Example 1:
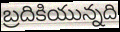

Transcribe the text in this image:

బ్రదికియున్నది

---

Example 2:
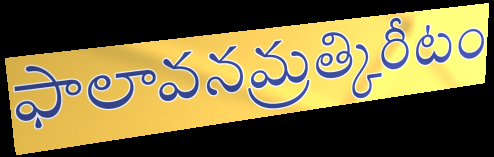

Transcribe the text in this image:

ఫాలావనమ్రత్కిరీటం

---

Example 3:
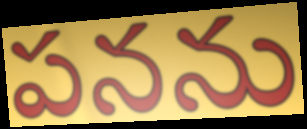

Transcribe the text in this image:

పనను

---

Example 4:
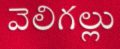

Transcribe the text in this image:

వెలిగల్లు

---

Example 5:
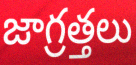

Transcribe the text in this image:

జాగ్రత్తలు